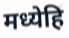
मध्येहि